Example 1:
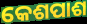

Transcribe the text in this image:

କେଶପାଶ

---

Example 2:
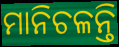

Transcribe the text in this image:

ମାନିଚଳନ୍ତି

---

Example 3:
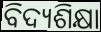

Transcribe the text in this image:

ବିଦ୍ୟଶିକ୍ଷା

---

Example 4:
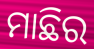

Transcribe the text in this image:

ମାଛିର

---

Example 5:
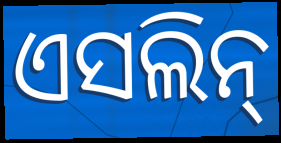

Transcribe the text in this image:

ଏସଲିନ୍